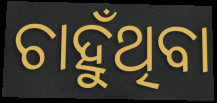
ଚାହୁଁଥିବା